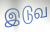
இடுவ